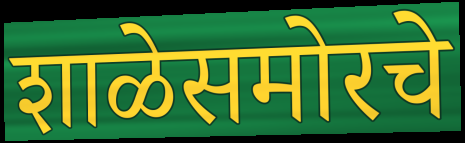
शाळेसमोरचे